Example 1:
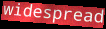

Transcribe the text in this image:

widespread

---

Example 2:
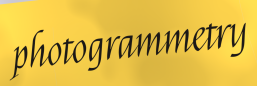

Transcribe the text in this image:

photogrammetry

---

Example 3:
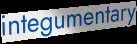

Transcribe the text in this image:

integumentary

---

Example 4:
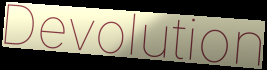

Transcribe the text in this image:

Devolution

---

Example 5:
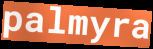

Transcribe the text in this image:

palmyra